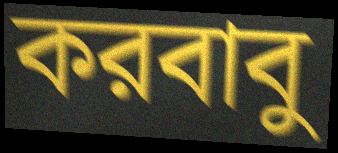
করবাবু